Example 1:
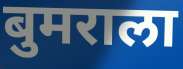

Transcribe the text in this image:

बुमराला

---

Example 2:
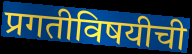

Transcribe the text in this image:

प्रगतीविषयीची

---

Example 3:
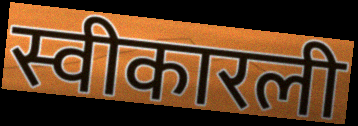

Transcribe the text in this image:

स्वीकारली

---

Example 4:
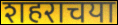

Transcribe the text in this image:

शहराचया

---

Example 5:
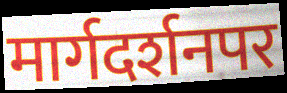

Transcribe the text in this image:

मार्गदर्शनपर